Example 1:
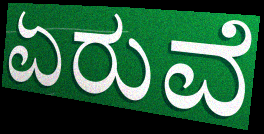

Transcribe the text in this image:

ಏರುವೆ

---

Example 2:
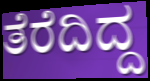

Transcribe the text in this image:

ತೆರೆದಿದ್ದ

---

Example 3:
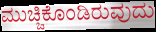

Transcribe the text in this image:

ಮುಚ್ಚಿಕೊಂಡಿರುವುದು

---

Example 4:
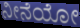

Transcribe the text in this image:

ನೀನೆಯೋ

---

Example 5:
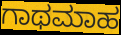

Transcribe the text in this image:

ಗಾಥಮಾಹ